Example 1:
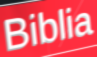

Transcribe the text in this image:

Biblia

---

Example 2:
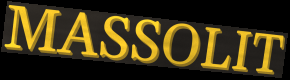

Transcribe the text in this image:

MASSOLIT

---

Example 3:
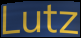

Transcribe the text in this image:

Lutz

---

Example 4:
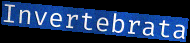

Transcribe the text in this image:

Invertebrata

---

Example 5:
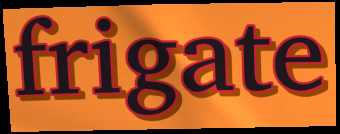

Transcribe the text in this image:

frigate